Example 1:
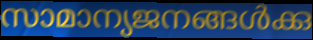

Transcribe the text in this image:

സാമാന്യജനങ്ങൾക്കു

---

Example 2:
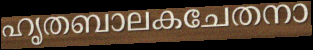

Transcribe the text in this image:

ഹൃതബാലകചേതനാ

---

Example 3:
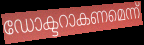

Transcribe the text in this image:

ഡോക്ടറാകണമെന്ന്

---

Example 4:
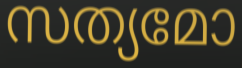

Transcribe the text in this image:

സത്യമോ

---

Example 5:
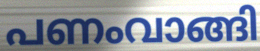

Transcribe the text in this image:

പണംവാങ്ങി